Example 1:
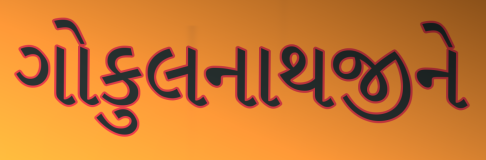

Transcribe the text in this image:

ગોકુલનાથજીને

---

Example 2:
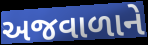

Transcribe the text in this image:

અજવાળાને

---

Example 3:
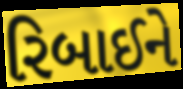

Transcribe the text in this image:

રિબાઈને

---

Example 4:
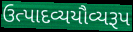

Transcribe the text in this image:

ઉત્પાદવ્યયૌવ્યરૂપ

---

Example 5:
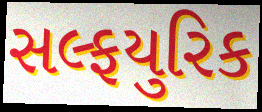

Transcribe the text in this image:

સલ્ફયુરિક